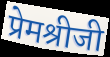
प्रेमश्रीजी